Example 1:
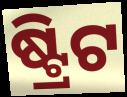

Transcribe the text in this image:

ଷ୍ଟ୍ରିଟ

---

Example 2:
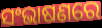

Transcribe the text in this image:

ସଂଭାଷଣରେ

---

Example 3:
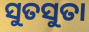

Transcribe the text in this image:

ସୁତସୁତା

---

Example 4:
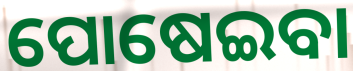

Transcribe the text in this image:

ପୋଷେଇବା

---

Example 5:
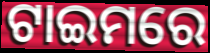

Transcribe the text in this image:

ଟାଇମରେ